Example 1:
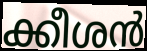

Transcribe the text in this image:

ക്കീശൻ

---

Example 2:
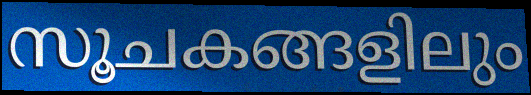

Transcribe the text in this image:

സൂചകങ്ങളിലും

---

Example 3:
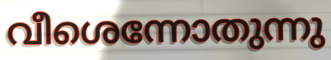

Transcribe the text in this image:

വീശെന്നോതുന്നു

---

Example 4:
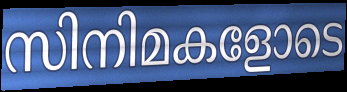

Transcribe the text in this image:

സിനിമകളോടെ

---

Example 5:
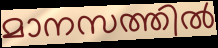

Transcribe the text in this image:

മാനസത്തിൽ